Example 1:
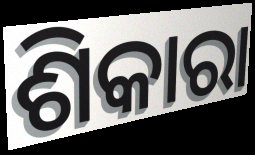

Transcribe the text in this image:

ଶିକାରା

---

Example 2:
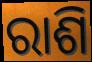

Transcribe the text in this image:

ରାଶି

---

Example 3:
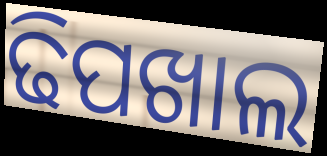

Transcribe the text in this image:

ଢିପଖାଲ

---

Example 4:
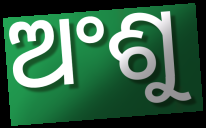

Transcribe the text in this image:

ଅଂଶୁ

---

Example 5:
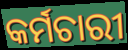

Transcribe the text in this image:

କର୍ମଚାରୀ